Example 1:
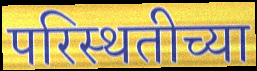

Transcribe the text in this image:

परिस्थतीच्या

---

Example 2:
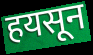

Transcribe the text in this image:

हयसून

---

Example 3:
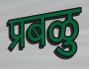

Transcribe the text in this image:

प्रबळु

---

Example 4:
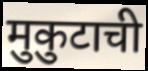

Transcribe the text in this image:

मुकुटाची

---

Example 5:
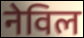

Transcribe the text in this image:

नेविल